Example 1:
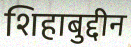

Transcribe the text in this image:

शिहाबुद्दीन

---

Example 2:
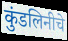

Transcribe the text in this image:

कुंडलिनीचे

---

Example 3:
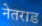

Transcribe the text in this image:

नेतराड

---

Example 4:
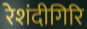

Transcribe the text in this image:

रेशंदीगिरि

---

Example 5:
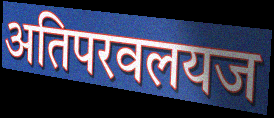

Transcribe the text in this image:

अतिपरवलयज